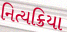
નિત્યક્રિયા